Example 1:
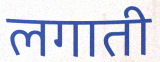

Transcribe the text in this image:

लगाती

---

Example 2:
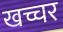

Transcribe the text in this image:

खच्चर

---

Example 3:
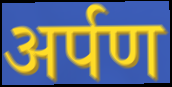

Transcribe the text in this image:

अर्पण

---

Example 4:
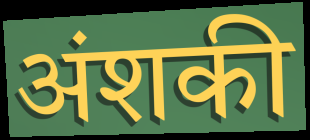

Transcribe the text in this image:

अंशकी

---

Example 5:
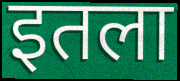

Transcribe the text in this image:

इतला